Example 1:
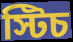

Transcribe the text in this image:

স্টিচ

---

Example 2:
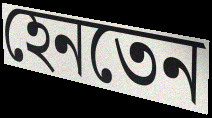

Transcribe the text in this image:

হেনতেন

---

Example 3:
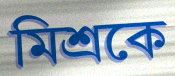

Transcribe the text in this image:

মিশ্রকে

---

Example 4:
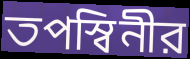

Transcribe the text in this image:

তপস্বিনীর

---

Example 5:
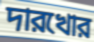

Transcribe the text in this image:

দারখোর